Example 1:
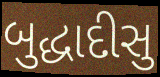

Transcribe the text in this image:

બુદ્ધાદીસુ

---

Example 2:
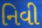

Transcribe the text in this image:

નિવી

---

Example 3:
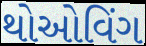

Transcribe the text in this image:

થોઓવિંગ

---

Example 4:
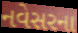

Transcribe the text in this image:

નવેસરના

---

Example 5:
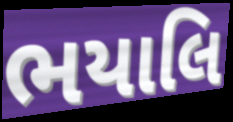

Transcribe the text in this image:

ભયાલિ